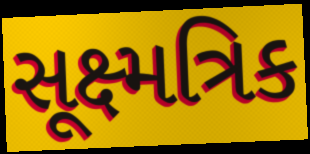
સૂક્ષ્મત્રિક